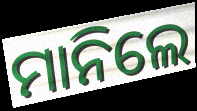
ମାନିଲେ